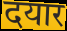
दयार